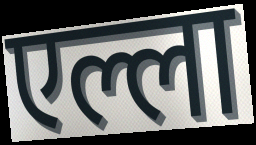
एल्ला